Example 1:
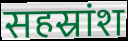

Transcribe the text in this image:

सहस्रांश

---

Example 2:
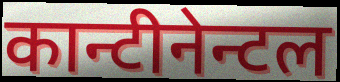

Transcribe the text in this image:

कान्टीनेन्टल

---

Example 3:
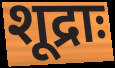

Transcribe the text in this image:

शूद्राः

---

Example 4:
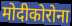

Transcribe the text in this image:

मोदीकोरोना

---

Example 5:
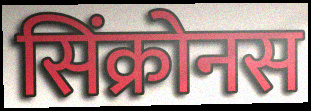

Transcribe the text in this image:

सिंक्रोनस